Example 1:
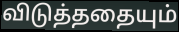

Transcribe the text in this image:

விடுத்ததையும்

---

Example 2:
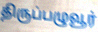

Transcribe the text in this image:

திருப்பழுவூர்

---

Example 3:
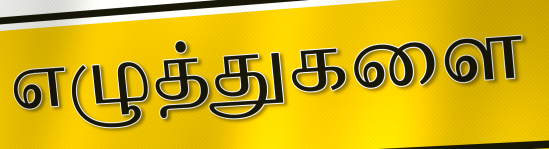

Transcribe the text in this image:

எழுத்துகளை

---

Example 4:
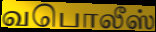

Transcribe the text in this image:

வபொலீஸ்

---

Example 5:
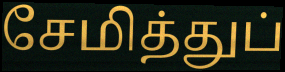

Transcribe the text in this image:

சேமித்துப்